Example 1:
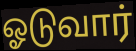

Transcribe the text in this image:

ஓடுவார்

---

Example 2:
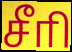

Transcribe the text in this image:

சீரி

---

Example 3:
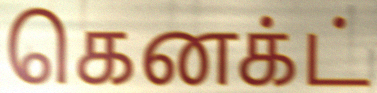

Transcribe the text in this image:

கெனக்ட்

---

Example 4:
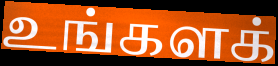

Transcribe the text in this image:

உங்களக்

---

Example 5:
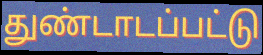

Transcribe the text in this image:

துண்டாடப்பட்டு